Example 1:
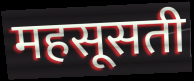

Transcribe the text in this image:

महसूसती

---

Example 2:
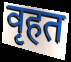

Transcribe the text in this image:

वृहत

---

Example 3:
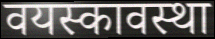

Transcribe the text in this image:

वयस्कावस्था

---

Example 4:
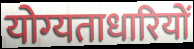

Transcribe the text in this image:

योग्यताधारियों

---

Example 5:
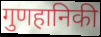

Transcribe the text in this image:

गुणहानिकी